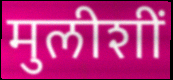
मुलीशीं